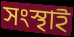
সংস্থাই